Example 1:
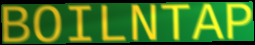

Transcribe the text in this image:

BOILNTAP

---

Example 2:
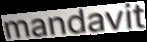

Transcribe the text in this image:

mandavit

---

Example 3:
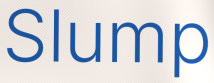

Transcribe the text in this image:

Slump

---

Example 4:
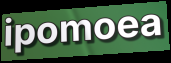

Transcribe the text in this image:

ipomoea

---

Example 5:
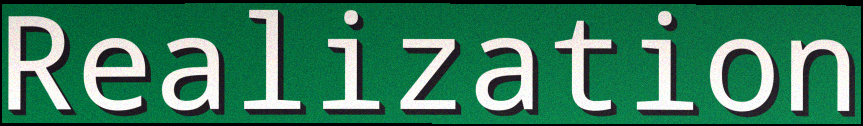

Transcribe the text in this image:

Realization